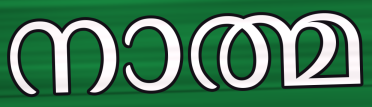
നാത്മ